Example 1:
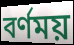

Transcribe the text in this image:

বর্ণময়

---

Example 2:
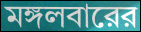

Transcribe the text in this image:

মঙ্গলবারের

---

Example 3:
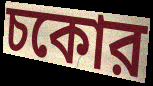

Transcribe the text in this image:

চকোর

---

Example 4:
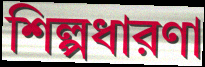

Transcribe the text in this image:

শিল্পধারণা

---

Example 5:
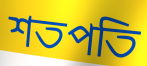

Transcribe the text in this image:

শতপতি